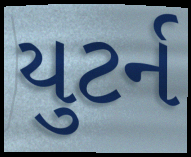
યુટર્ન